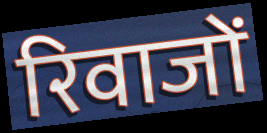
रिवाजों